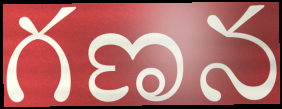
గణన